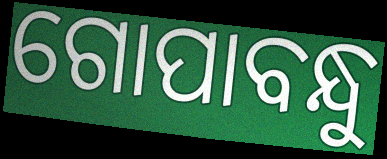
ଗୋପାବନ୍ଧୁ